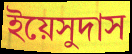
ইয়েসুদাস